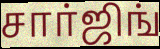
சார்ஜிங்